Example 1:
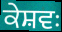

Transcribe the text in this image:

ਕੇਸ਼ਵਃ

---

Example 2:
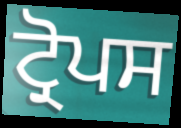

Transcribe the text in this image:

ਟ੍ਰੋਪਸ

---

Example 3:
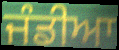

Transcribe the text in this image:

ਜੰਡੀਆ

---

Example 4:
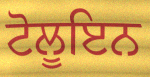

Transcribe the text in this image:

ਟੋਲੂਇਨ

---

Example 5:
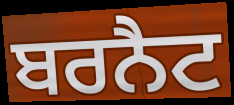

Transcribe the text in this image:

ਬਰਨੈਟ